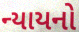
ન્યાયનો